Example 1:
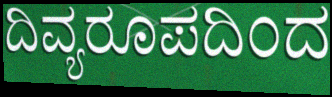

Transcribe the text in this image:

ದಿವ್ಯರೂಪದಿಂದ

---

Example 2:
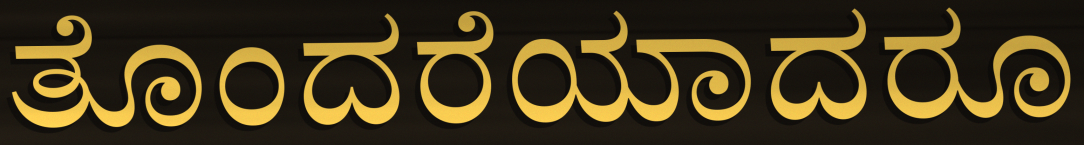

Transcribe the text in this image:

ತೊಂದರೆಯಾದರೂ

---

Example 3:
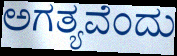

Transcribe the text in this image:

ಅಗತ್ಯವೆಂದು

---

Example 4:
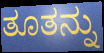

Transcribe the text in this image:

ತೂತನ್ನು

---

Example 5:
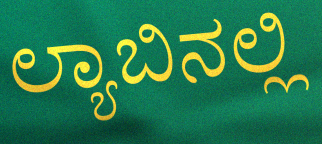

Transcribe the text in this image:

ಲ್ಯಾಬಿನಲ್ಲಿ